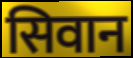
सिवान